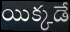
యిక్కడే